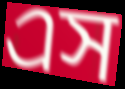
এস